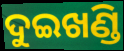
ଦୁଇଖଣ୍ଡି